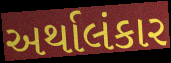
અર્થાલંકાર